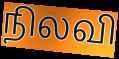
நிலவி